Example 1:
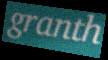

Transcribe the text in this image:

granth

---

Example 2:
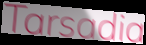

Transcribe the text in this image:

Tarsadia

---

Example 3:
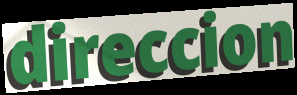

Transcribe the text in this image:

direccion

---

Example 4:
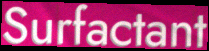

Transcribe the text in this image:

Surfactant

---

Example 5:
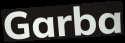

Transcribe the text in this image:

Garba